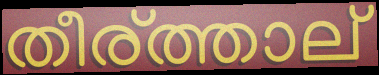
തീര്ത്താല്